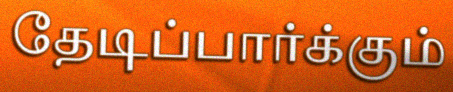
தேடிப்பார்க்கும்